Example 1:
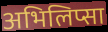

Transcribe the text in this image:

अभिलिप्सा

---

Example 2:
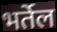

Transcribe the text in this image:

भर्तेल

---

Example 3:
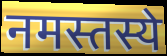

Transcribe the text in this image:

नमस्तस्ये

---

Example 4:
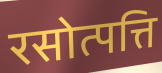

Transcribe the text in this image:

रसोत्पत्ति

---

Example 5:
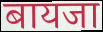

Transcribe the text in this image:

बायजा